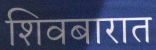
शिवबारात